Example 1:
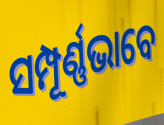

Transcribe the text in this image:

ସମ୍ପୂର୍ଣ୍ଣଭାବେ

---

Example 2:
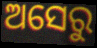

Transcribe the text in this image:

ଅସେରୁ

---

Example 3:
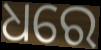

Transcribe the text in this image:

ଧରେ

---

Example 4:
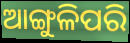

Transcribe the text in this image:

ଆଙ୍ଗୁଳିପରି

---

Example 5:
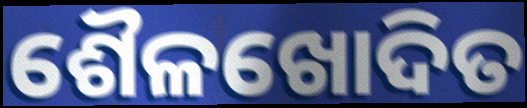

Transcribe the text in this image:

ଶୈଳଖୋଦିତ